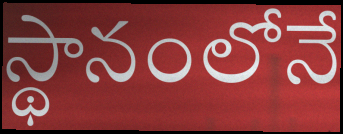
స్థానంలోనే